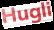
Hugli